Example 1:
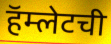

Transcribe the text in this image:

हॅम्लेटची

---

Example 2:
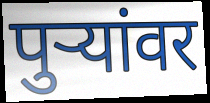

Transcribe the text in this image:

पुऱ्यांवर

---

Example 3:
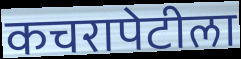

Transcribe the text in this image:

कचरापेटीला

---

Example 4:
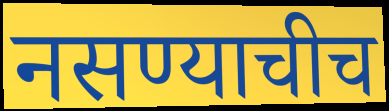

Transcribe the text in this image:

नसण्याचीच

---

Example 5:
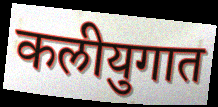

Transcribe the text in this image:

कलीयुगात